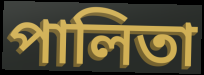
পালিতা